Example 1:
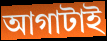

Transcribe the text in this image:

আগাটাই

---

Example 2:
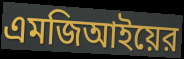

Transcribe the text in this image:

এমজিআইয়ের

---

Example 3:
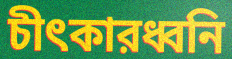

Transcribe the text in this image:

চীৎকারধ্বনি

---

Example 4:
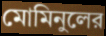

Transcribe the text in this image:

মোমিনুলের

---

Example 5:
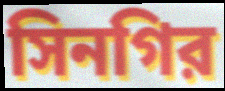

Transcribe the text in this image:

সিনগির